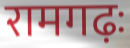
रामगढ़ः